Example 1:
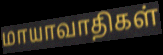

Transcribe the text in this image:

மாயாவாதிகள்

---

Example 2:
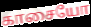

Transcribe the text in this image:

காசையோ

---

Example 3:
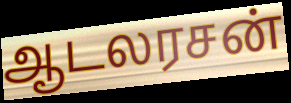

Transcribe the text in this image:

ஆடலரசன்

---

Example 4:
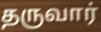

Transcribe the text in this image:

தருவார்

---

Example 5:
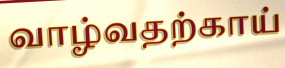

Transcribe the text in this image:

வாழ்வதற்காய்